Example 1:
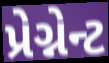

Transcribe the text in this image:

પ્રેગ્નેન્ટ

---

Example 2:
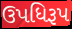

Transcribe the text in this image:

ઉપધિરૂપ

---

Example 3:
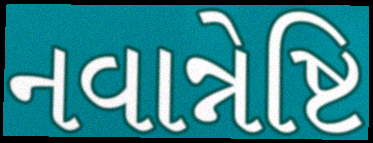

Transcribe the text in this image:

નવાન્નેષ્ટિ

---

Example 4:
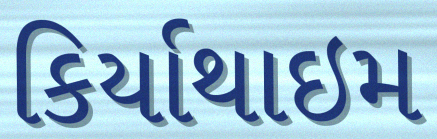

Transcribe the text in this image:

કિર્યાથાઇમ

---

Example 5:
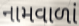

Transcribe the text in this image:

નામવાળાં